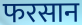
फरसान